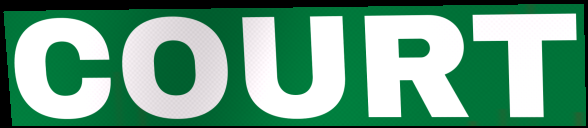
COURT